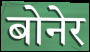
बोनेर